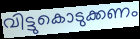
വിട്ടുകൊടുക്കണം